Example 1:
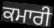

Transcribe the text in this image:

ਕਮਾਰੀ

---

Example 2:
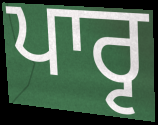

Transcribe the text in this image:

ਪਾਰ੍ਟ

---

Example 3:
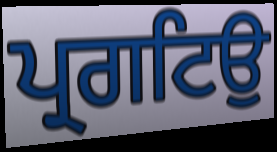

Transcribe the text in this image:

ਪ੍ਰਗਟਿਉ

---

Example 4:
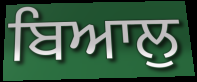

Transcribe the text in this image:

ਬਿਆਲੁ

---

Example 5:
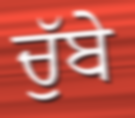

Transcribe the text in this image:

ਚੁੱਬੇ